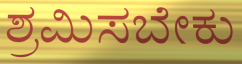
ಶ್ರಮಿಸಬೇಕು